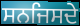
ਸਨਜਿਸਦੇ